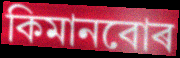
কিমানবোৰ